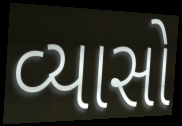
વ્યાસો